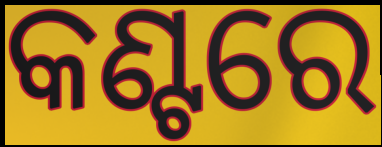
କଣ୍ଟରେ